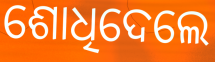
ଶୋଧିଦେଲେ